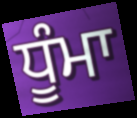
ਧੂੰਮਾ